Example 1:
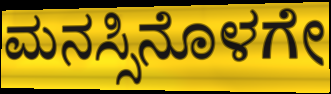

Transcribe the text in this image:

ಮನಸ್ಸಿನೊಳಗೇ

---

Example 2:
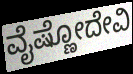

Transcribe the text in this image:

ವೈಷ್ಣೋದೇವಿ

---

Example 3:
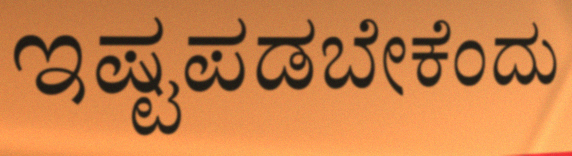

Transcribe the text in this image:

ಇಷ್ಟಪಡಬೇಕೆಂದು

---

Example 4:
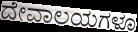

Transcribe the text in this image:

ದೇವಾಲಯಗಳೂ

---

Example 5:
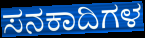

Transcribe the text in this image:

ಸನಕಾದಿಗಳ